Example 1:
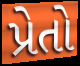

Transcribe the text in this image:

પ્રેતો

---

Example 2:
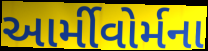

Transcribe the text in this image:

આર્મીવોર્મના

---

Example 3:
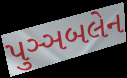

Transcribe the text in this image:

પુઞ્ઞબલેન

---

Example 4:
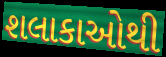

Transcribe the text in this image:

શલાકાઓથી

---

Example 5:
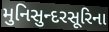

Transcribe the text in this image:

મુનિસુન્દરસૂરિના